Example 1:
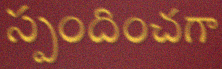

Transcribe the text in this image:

స్పందించగా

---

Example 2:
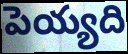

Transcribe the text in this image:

పెయ్యది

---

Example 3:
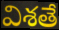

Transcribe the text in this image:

విశతే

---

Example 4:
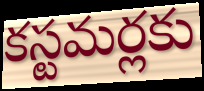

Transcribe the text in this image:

కస్టమర్లకు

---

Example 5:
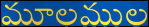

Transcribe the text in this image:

మూలముల